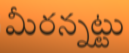
మీరన్నట్టు